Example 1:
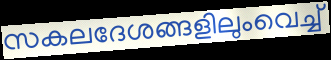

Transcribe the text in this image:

സകലദേശങ്ങളിലുംവെച്ച്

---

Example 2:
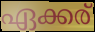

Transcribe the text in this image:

ഏക്കര്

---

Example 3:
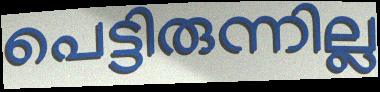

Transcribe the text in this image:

പെട്ടിരുന്നില്ല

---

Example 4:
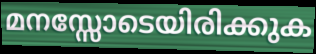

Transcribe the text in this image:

മനസ്സോടെയിരിക്കുക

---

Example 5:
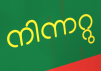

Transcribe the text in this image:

നിന്നറ്റു